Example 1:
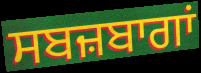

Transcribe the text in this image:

ਸਬਜ਼ਬਾਗਾਂ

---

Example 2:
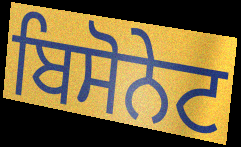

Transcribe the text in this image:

ਬਿਸੋਨੇਟ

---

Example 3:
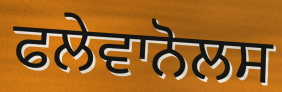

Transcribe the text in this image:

ਫਲੇਵਾਨੋਲਸ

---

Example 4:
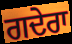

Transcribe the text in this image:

ਗਦੇਰਾ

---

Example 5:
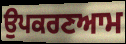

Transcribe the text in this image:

ਉਪਕਰਣਆਮ